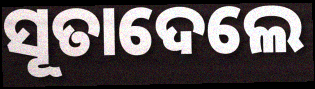
ସୂତାଦେଲେ